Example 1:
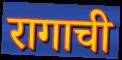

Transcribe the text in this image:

रागाची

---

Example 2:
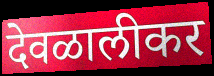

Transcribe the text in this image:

देवळालीकर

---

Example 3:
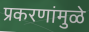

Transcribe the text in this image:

प्रकरणांमुळे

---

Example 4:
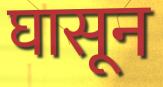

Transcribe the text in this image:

घासून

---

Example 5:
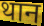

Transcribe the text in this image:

थान